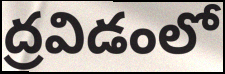
ద్రవిడంలో